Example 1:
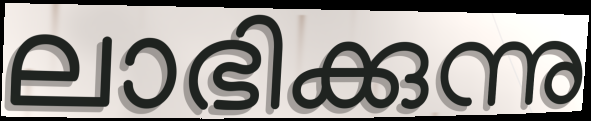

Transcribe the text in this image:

ലാഭിക്കുന്നു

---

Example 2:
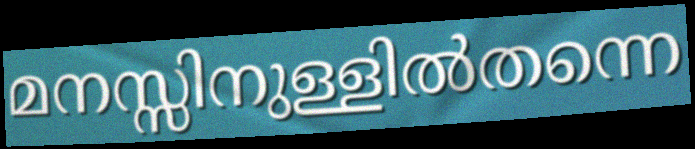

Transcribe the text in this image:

മനസ്സിനുള്ളിൽതന്നെ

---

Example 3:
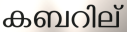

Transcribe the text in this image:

കബറില്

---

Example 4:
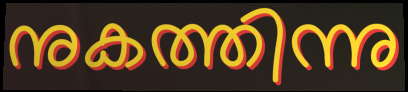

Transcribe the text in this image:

നുകത്തിന്നു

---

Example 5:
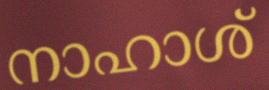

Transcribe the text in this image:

നാഹാശ്